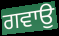
ਗਵਾਉ